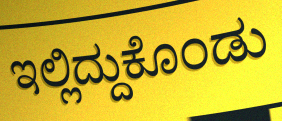
ಇಲ್ಲಿದ್ದುಕೊಂಡು